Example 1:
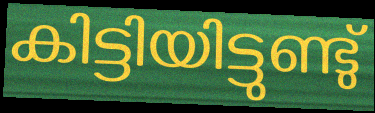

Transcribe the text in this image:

കിട്ടിയിട്ടുണ്ടു്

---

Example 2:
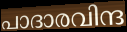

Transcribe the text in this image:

പാദാരവിന്ദ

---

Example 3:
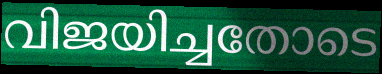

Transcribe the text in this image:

വിജയിച്ചതോടെ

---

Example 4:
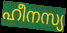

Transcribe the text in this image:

ഹീനസ്യ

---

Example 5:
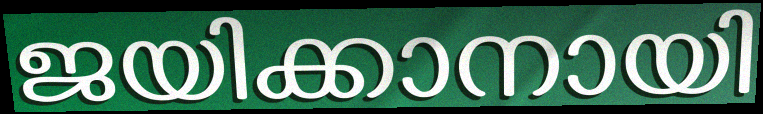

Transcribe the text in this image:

ജയിക്കാനായി